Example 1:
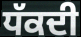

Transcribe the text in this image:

ਧੱਕਦੀ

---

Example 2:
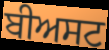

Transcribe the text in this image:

ਬੀਅਸਟ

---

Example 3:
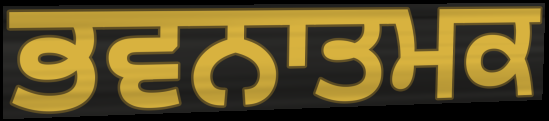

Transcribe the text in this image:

ਭਵਨਾਤਮਕ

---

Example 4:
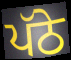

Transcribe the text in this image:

ਪੱਠੇ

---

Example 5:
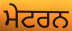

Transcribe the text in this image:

ਮੇਟਰਨ